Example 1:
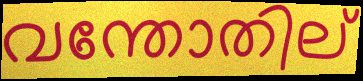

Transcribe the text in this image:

വന്തോതില്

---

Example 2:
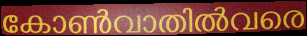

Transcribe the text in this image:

കോൺവാതിൽവരെ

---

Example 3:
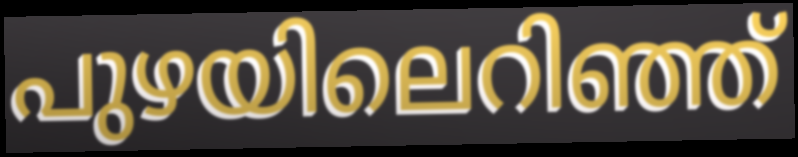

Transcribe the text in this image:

പുഴയിലെറിഞ്ഞ്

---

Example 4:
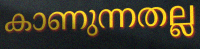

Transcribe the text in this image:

കാണുന്നതല്ല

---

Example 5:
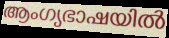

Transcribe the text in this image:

ആംഗ്യഭാഷയിൽ